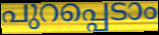
പുറപ്പെടാം